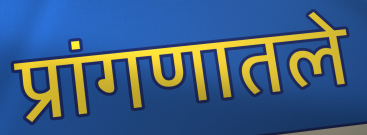
प्रांगणातले